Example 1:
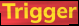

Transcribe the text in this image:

Trigger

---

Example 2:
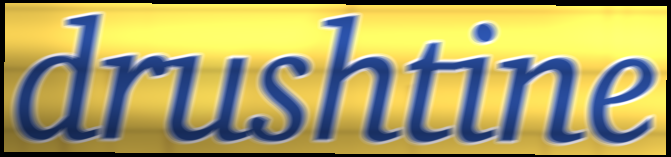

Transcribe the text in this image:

drushtine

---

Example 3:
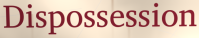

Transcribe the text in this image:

Dispossession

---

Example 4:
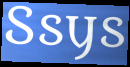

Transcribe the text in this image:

Ssys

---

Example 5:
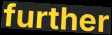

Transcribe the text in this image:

further